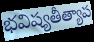
భవిష్యతీత్యాప